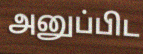
அனுப்பிட